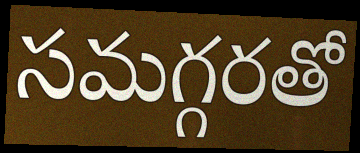
సమగ్గరతో